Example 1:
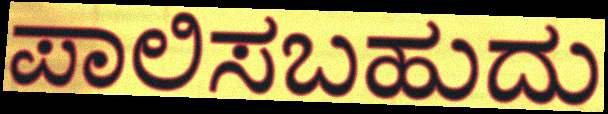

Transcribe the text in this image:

ಪಾಲಿಸಬಹುದು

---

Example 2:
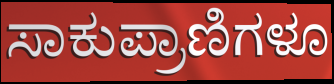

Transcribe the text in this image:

ಸಾಕುಪ್ರಾಣಿಗಳೂ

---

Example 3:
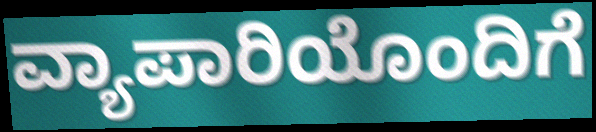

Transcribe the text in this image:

ವ್ಯಾಪಾರಿಯೊಂದಿಗೆ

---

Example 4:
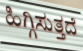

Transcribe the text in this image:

ಹಿಗ್ಗಿಸುತ್ತದೆ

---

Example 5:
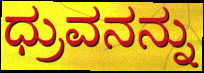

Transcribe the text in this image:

ಧ್ರುವನನ್ನು